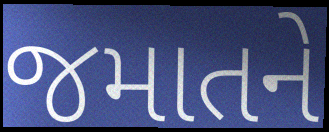
જમાતને